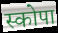
स्कोपा